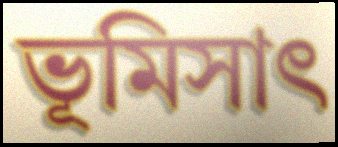
ভূমিসাৎ